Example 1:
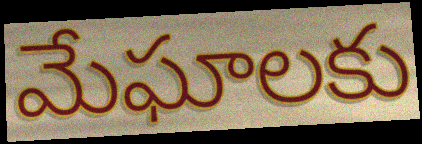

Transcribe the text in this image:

మేఘాలకు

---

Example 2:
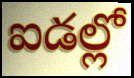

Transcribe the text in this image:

ఐడల్లో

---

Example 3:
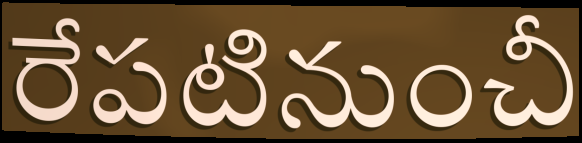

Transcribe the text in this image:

రేపటినుంచీ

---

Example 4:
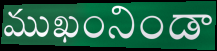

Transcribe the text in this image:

ముఖంనిండా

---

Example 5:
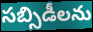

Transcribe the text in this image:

సబ్సిడీలను